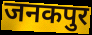
जनकपुर